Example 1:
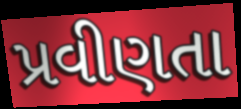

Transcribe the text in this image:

પ્રવીણતા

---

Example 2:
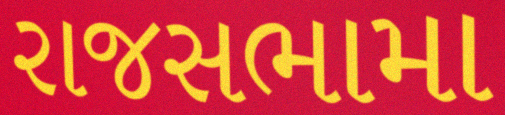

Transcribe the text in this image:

રાજસભામા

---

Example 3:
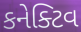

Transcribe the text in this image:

કનેક્ટિવ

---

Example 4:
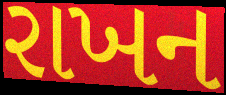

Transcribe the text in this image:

રાખન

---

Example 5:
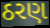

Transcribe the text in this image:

ઠરણ